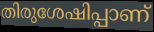
തിരുശേഷിപ്പാണ്